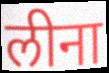
लीना